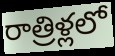
రాత్రిళ్లలో